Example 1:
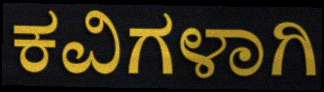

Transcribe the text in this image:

ಕವಿಗಳಾಗಿ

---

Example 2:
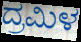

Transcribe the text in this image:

ದ್ರಮಿಳ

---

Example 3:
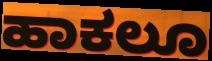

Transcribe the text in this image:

ಹಾಕಲೂ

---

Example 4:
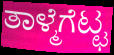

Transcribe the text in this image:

ತಾಳ್ಮೆಗೆಟ್ಟ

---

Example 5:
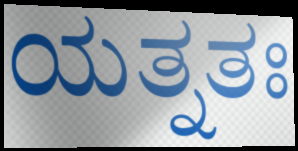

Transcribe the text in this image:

ಯತ್ನತಃ